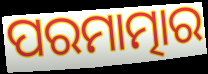
ପରମାତ୍ମାର